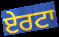
ਏਰਟਾ